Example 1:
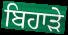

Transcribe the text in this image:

ਬਿਹਾੜੇ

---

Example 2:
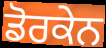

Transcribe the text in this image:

ਡੋਰਕੇਨ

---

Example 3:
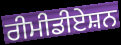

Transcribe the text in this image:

ਰੀਮੀਡੀਏਸ਼ਨ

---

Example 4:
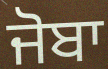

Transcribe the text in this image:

ਜੋਬਾ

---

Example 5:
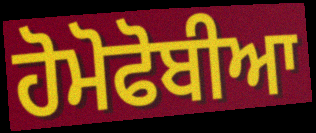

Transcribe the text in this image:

ਹੋਮੋਫੋਬੀਆ